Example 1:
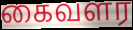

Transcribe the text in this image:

கைவளர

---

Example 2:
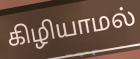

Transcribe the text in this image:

கிழியாமல்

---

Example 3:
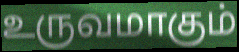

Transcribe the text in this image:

உருவமாகும்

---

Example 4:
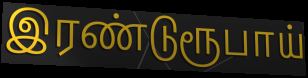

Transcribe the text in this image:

இரண்டுரூபாய்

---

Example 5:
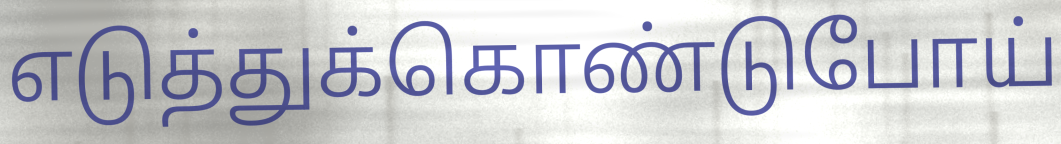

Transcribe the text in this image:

எடுத்துக்கொண்டுபோய்